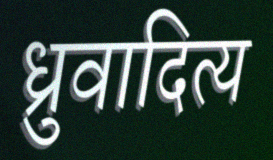
ध्रुवादित्य